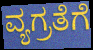
ವ್ಯಗ್ರತೆಗೆ